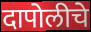
दापोलीचे